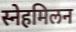
स्नेहमिलन